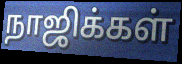
நாஜிக்கள்